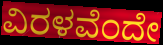
ವಿರಳವೆಂದೇ